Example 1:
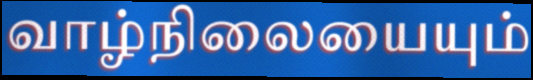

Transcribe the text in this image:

வாழ்நிலையையும்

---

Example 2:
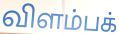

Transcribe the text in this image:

விளம்பக்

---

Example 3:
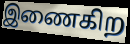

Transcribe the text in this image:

இணைகிற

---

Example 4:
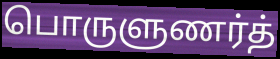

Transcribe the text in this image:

பொருளுணர்த்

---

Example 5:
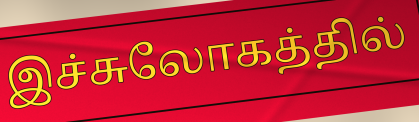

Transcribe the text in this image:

இச்சுலோகத்தில்